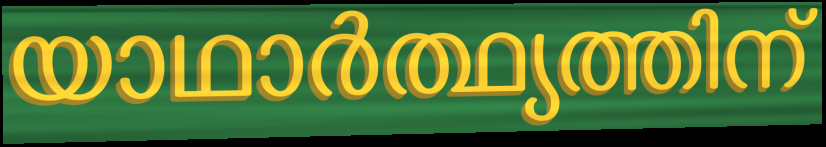
യാഥാർത്ഥ്യത്തിന്